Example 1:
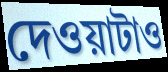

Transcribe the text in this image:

দেওয়াটাও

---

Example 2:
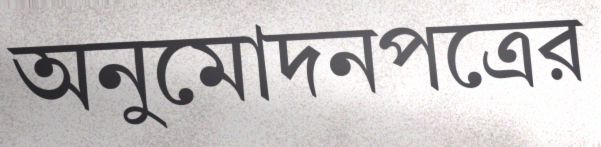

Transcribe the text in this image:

অনুমোদনপত্রের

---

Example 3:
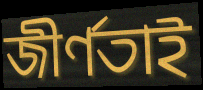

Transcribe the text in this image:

জীর্ণতাই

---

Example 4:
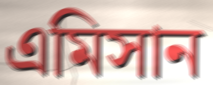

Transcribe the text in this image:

এমিসান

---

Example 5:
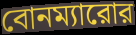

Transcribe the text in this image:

বোনম্যারোর